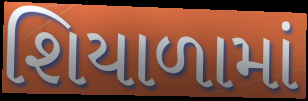
શિયાળામાં